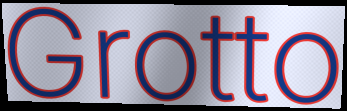
Grotto